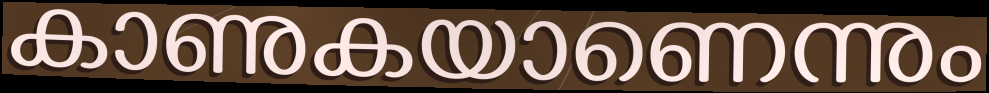
കാണുകയാണെന്നും